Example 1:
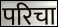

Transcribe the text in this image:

परिचा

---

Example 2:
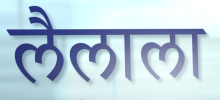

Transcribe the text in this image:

लैलाला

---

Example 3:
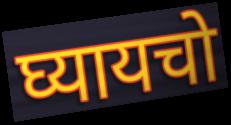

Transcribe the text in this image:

घ्यायचो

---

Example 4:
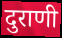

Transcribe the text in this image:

दुराणी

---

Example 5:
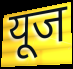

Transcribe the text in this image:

यूज